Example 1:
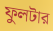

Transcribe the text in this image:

ফুলটার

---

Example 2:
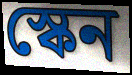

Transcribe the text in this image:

স্কেন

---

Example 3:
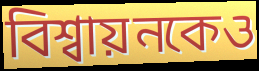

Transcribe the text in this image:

বিশ্বায়নকেও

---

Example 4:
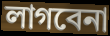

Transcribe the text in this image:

লাগবেনা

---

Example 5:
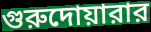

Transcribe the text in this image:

গুরুদোয়ারার